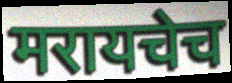
मरायचेच